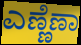
ಎಣ್ಣೆಣಾ